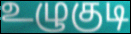
உழுகுடி